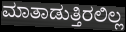
ಮಾತಾಡುತ್ತಿರಲಿಲ್ಲ